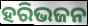
ହରିଭଜନ